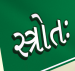
સ્ત્રોતઃ